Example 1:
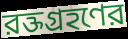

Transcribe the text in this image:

রক্তগ্রহণের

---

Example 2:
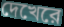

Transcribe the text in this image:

দেখেরে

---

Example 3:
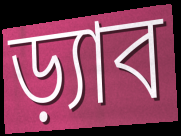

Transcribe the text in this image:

ড়্যাব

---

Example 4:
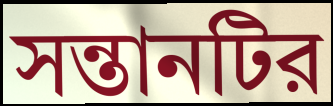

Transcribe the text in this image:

সন্তানটির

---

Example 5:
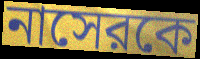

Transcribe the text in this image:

নাসেরকে